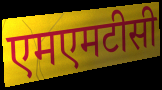
एमएमटीसी